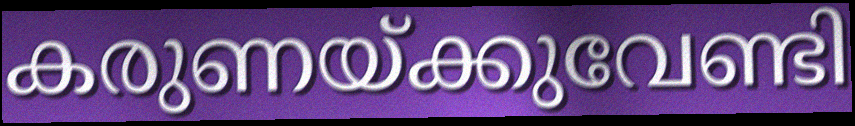
കരുണയ്ക്കുവേണ്ടി